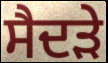
ਸੈਦੜੇ